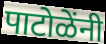
पाटोळेंनी